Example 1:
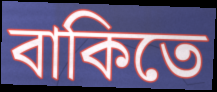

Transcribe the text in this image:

বাকিতে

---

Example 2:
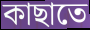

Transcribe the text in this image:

কাছাতে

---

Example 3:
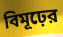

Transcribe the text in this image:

বিমূঢ়ের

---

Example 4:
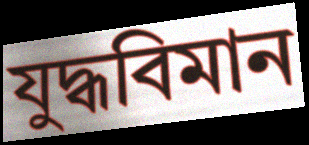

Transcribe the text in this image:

যুদ্ধবিমান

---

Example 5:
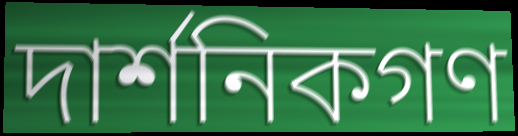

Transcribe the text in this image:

দার্শনিকগণ